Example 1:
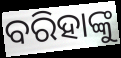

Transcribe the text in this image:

ବରିହାଙ୍କୁ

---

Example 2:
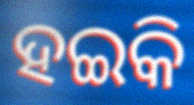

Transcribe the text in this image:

ହଇକି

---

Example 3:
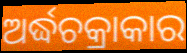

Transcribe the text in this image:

ଅର୍ଦ୍ଧଚକ୍ରାକାର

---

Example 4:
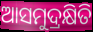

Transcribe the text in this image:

ଆସମୁଦ୍ରକ୍ଷିତି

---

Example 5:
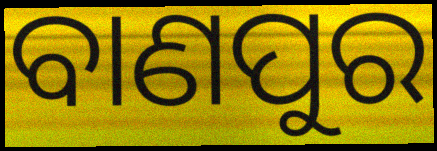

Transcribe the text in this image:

ବାଣପୁର